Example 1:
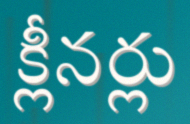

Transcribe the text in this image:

క్లీనర్లు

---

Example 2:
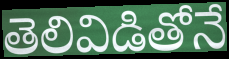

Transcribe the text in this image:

తెలివిడితోనే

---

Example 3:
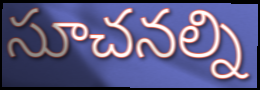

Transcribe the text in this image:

సూచనల్ని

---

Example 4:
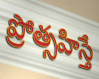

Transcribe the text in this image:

ప్రోత్సహిస్తే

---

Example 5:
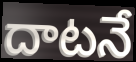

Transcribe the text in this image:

దాటనే